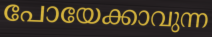
പോയേക്കാവുന്ന